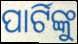
ପାର୍ଟିଙ୍କୁ